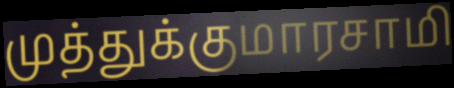
முத்துக்குமாரசாமி